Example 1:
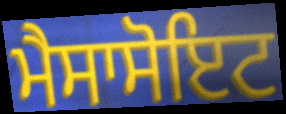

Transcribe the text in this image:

ਮੈਸਾਸੋਇਟ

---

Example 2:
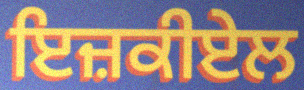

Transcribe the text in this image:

ਇਜ਼ਕੀਏਲ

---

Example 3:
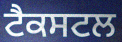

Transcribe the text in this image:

ਟੈਕਸਟਲ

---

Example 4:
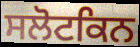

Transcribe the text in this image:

ਸਲੋਟਕਿਨ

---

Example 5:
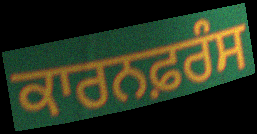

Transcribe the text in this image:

ਕਾਰਨਫ਼ਰੰਸ